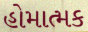
હોમાત્મક